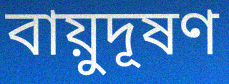
বায়ুদূষণ